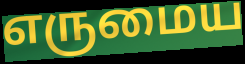
எருமைய